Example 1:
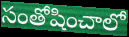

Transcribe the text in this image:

సంతోషించాలో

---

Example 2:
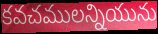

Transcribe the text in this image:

కవచములన్నియును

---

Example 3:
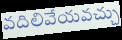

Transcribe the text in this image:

వదిలివేయవచ్చు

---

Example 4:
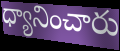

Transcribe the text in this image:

ధ్యానించారు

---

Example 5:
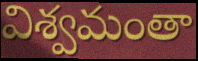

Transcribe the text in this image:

విశ్వమంతా